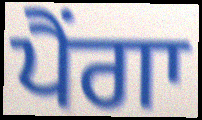
ਪੈਂਗਾ